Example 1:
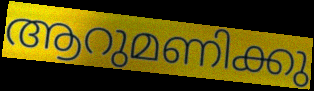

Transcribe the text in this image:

ആറുമണിക്കു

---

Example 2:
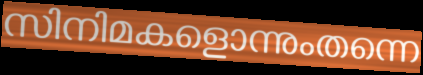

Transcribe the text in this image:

സിനിമകളൊന്നുംതന്നെ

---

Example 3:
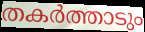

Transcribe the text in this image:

തകർത്താടും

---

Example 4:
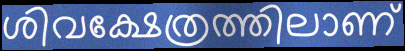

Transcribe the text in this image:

ശിവക്ഷേത്രത്തിലാണ്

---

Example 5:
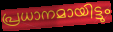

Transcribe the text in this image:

പ്രധാനമായിട്ടും